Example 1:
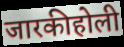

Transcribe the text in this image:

जारकीहोली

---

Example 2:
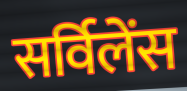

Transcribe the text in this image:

सर्विलेंस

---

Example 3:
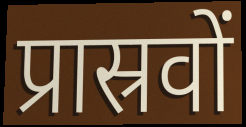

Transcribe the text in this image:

प्रास्रवों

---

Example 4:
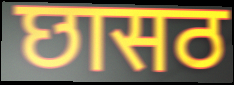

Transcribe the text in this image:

छासठ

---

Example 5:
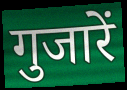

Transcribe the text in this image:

गुजारें